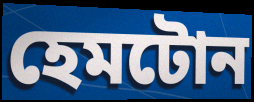
হেমটোন